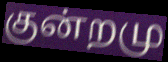
குன்றமு